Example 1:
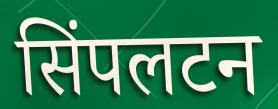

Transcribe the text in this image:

सिंपलटन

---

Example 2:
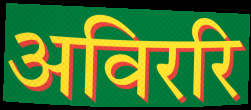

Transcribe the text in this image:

अविररि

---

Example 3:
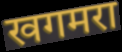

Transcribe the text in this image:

खगमरा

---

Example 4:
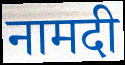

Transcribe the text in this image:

नामदी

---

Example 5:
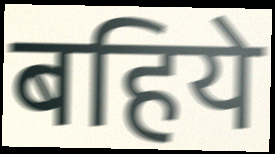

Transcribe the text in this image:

बहिये